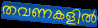
തവണകളിൽ